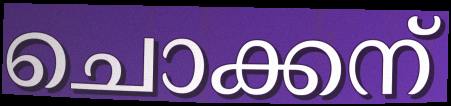
ചൊക്കന്